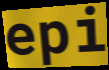
epi